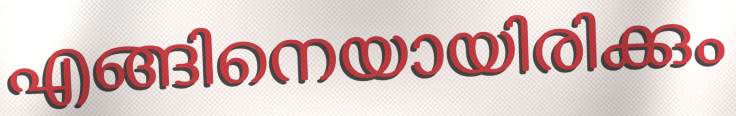
എങ്ങിനെയായിരിക്കും